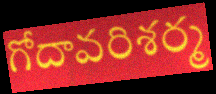
గోదావరిశర్మ